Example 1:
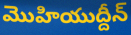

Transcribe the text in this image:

మొహియుద్దీన్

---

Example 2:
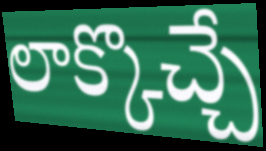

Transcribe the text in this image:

లాక్కొచ్చే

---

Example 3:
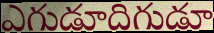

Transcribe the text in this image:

ఎగుడూదిగుడూ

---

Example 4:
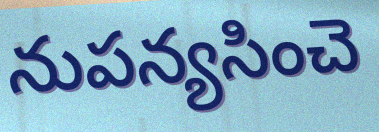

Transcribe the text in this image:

నుపన్యసించె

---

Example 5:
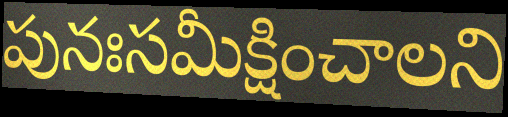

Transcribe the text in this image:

పునఃసమీక్షించాలని